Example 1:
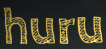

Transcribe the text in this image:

huru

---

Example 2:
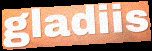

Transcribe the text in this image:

gladiis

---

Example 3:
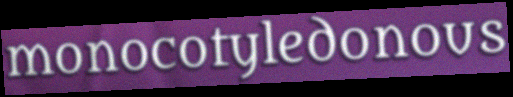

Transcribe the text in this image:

monocotyledonous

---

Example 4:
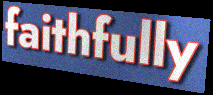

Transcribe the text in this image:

faithfully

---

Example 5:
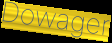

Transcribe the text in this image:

Dowager